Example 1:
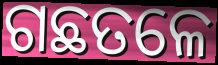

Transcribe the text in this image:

ଗଛତଳେ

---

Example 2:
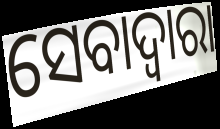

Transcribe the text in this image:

ସେବାଦ୍ବାରା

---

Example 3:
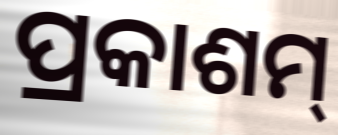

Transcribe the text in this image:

ପ୍ରକାଶମ୍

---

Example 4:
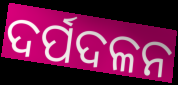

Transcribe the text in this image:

ଦର୍ପଦଳନ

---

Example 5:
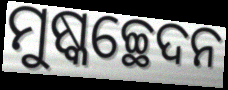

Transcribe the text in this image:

ମୁଷ୍କଚ୍ଛେଦନ